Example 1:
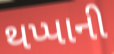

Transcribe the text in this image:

થપ્પાની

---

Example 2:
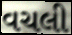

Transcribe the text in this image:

વચલી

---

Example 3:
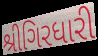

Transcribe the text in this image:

શ્રીગિરધારી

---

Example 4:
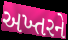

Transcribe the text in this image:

અખ્તરને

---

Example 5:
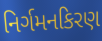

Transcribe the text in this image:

નિર્ગમનકિરણ